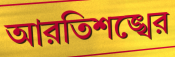
আরতিশঙ্খের